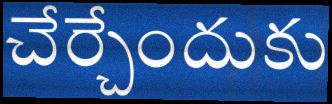
చేర్చేందుకు